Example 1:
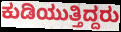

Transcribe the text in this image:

ಕುಡಿಯುತ್ತಿದ್ದರು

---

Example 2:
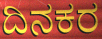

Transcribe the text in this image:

ದಿನಕರ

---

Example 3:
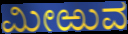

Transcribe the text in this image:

ಮೀಱುವ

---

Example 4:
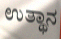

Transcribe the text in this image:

ಉತ್ಥಾನ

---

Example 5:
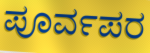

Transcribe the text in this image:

ಪೂರ್ವಪರ